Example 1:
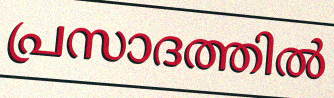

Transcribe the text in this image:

പ്രസാദത്തിൽ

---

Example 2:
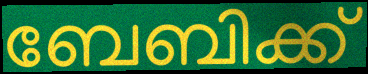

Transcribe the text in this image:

ബേബിക്ക്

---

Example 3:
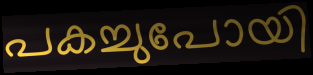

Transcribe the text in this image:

പകച്ചുപോയി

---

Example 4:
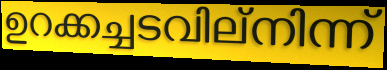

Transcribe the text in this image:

ഉറക്കച്ചടവില്നിന്ന്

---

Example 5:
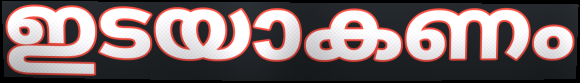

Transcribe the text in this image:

ഇടയാകണം